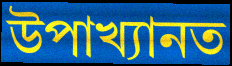
উপাখ্যানত